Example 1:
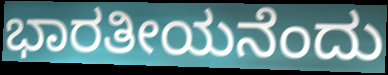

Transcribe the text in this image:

ಭಾರತೀಯನೆಂದು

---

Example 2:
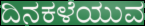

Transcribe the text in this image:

ದಿನಕಳೆಯುವ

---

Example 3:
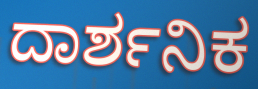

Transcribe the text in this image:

ದಾರ್ಶನಿಕ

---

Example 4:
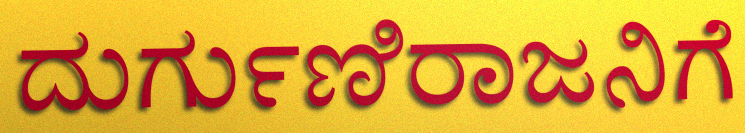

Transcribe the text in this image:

ದುರ್ಗುಣಿರಾಜನಿಗೆ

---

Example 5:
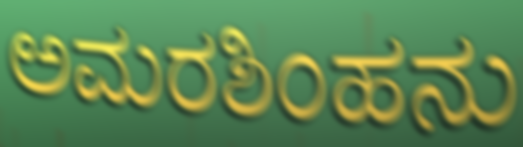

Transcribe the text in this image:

ಅಮರಶಿಂಹನು